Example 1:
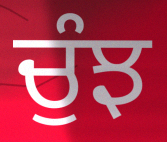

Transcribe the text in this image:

ਚੁੰਝ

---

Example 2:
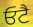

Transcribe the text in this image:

ਓਟੈ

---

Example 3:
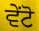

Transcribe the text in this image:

ਵੇਂਟੋ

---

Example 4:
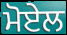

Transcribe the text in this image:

ਮੋਏਲ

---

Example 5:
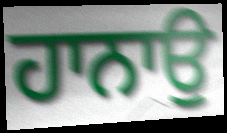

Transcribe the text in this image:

ਹਾਨਾਉ